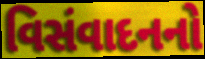
વિસંવાદનનો